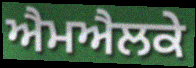
ਐਮਐਲਕੇ